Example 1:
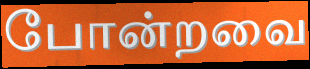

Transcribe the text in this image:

போன்றவை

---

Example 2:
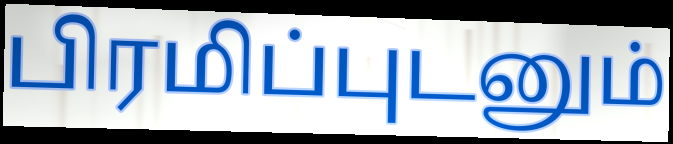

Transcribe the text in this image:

பிரமிப்புடனும்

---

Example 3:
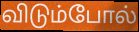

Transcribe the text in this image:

விடும்போல்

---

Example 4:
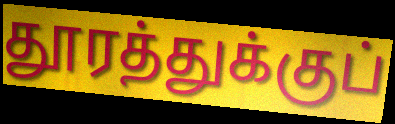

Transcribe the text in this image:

தூரத்துக்குப்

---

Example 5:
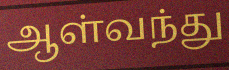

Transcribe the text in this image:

ஆள்வந்து